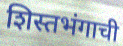
शिस्तभंगाची